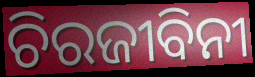
ଚିରଜୀବିନୀ